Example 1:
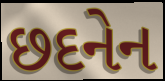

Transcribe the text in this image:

છદનેન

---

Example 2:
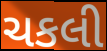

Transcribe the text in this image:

ચકલી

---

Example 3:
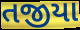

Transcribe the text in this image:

તજીયા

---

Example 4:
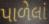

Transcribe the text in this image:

પાળેલાં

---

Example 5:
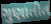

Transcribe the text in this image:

ગુણાતીત